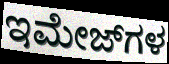
ಇಮೇಜ್‌ಗಳ